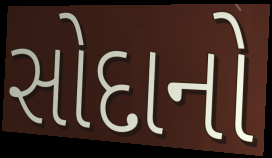
સોદાનો